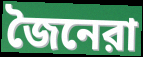
জৈনেরা